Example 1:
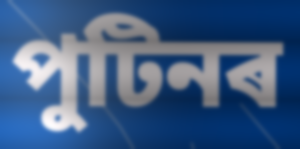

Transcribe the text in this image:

পুটিনৰ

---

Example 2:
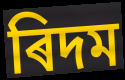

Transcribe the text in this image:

ৰিদম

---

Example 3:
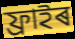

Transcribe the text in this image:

ফ্ৰাইৰ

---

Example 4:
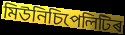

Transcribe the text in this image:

মিউনিচিপেলিটিৰ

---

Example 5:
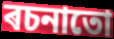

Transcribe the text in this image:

ৰচনাতো